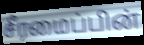
சீரமைப்பின்